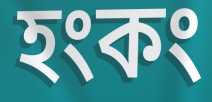
হংকং